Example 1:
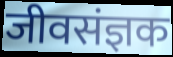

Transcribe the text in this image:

जीवसंज्ञक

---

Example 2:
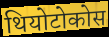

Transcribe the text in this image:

थियोटोकोस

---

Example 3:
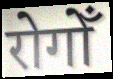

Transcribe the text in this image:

रोगोँ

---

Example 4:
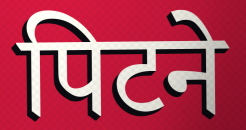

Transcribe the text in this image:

पिटने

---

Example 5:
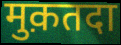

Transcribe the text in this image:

मुक़तदा